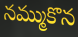
నమ్ముకొన